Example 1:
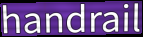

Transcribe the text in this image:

handrail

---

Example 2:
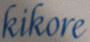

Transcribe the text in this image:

kikore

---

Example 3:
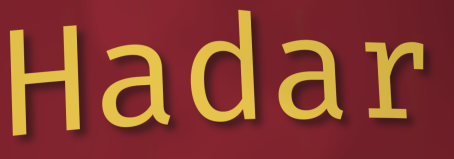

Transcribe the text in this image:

Hadar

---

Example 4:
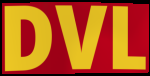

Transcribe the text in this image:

DVL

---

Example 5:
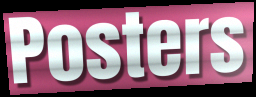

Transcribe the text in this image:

Posters